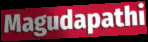
Magudapathi